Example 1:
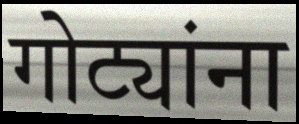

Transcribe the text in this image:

गोट्यांना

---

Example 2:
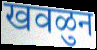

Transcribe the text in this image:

खवळुन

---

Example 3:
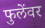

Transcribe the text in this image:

फुलेंवर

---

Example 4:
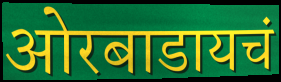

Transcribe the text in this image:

ओरबाडायचं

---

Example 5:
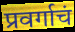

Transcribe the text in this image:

प्रवर्गाचं